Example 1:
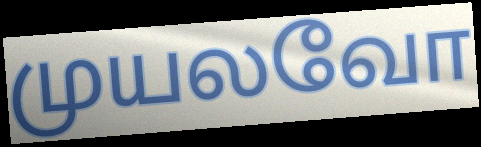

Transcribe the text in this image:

முயலவோ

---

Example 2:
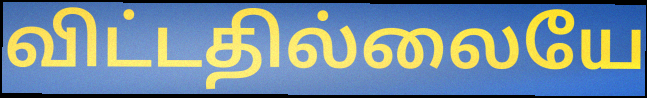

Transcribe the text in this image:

விட்டதில்லையே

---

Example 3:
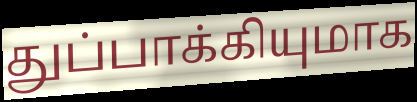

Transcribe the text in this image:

துப்பாக்கியுமாக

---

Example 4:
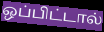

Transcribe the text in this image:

ஒப்பிட்டால்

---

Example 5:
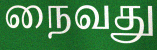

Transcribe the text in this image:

நைவது